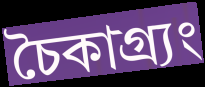
চৈকাগ্র্যং